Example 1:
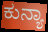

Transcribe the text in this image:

ಕುನ್ಯಾ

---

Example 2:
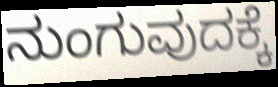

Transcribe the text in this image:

ನುಂಗುವುದಕ್ಕೆ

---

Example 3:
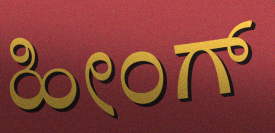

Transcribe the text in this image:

ಹೀಂಗ್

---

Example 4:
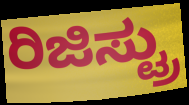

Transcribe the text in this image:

ರಿಜಿಸ್ಟ್ರು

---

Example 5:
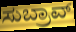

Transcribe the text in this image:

ಸುಬ್ರಾವ್